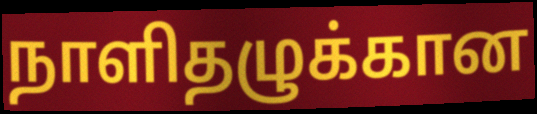
நாளிதழுக்கான